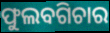
ଫୁଲବଗିଚାର